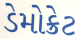
ડેમોક્રેટ